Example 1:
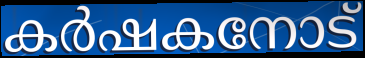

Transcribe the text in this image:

കർഷകനോട്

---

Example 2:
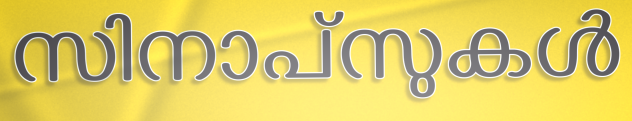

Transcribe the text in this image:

സിനാപ്സുകൾ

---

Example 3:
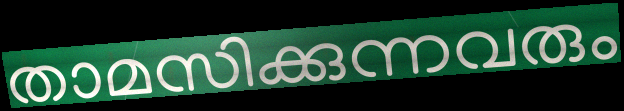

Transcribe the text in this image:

താമസിക്കുന്നവരും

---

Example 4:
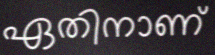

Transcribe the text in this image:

ഏതിനാണ്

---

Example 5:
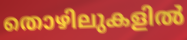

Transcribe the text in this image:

തൊഴിലുകളിൽ